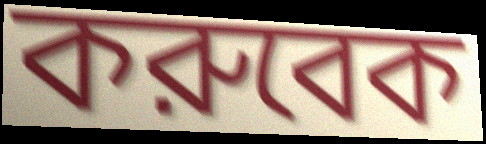
করুবেক